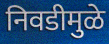
निवडीमुळे